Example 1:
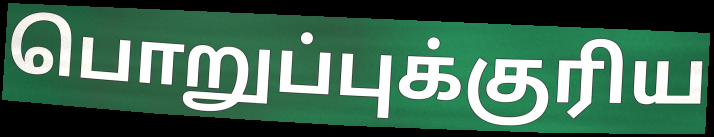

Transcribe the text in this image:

பொறுப்புக்குரிய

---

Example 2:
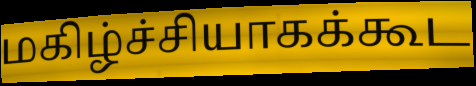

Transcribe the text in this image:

மகிழ்ச்சியாகக்கூட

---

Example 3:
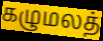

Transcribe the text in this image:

கழுமலத்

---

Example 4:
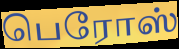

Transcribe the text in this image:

பெரோஸ்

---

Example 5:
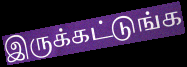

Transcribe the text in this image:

இருக்கட்டுங்க